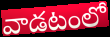
వాడటంలో